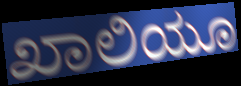
ಖಾಲಿಯೂ